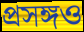
প্রসঙ্গও